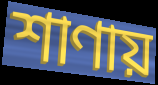
শাণায়